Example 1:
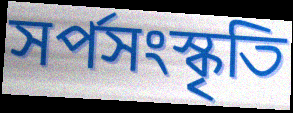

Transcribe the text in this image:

সর্পসংস্কৃতি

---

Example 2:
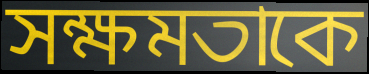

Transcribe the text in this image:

সক্ষমতাকে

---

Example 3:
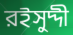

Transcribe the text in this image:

রইসুদ্দী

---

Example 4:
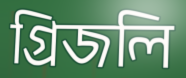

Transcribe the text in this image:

গ্রিজলি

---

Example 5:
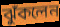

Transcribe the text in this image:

ঝুঁকলেন